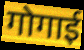
गोगाई